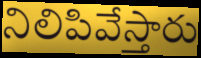
నిలిపివేస్తారు